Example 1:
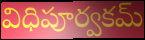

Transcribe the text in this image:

విధిపూర్వకమ్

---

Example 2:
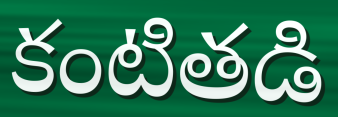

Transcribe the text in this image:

కంటితడి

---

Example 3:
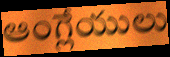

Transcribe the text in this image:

ఆంగ్లేయులు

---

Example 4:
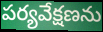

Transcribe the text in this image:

పర్యవేక్షణను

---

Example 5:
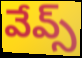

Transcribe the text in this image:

వేవ్స్